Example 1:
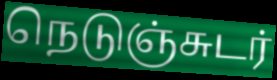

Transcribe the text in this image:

நெடுஞ்சுடர்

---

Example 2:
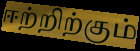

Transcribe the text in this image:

ஈற்றிற்கும்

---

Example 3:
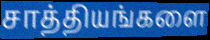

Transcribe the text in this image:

சாத்தியங்களை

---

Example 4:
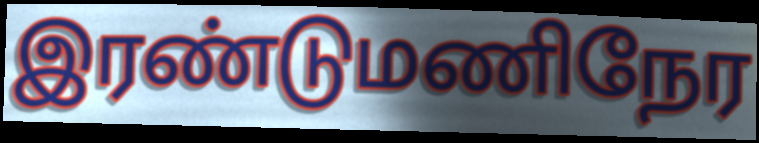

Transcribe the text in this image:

இரண்டுமணிநேர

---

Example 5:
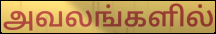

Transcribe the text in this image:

அவலங்களில்